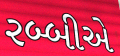
રબ્બીએ